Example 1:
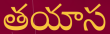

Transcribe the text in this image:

తయాస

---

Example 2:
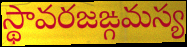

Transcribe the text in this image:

స్థావరజఙ్గమస్య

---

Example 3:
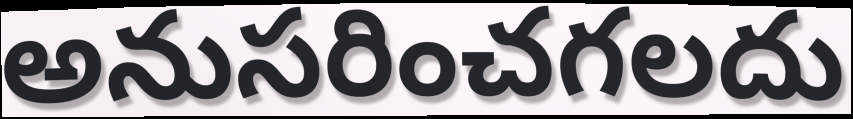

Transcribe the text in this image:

అనుసరించగలదు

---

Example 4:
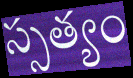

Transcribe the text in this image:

స్సత్యం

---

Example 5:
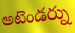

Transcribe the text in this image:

అటెండర్ను